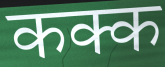
कक्क